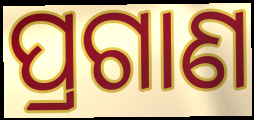
ପ୍ରଗାଣ